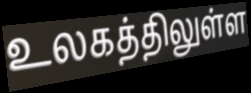
உலகத்திலுள்ள